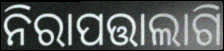
ନିରାପତ୍ତାଲାଗି